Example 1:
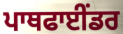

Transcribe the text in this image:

ਪਾਥਫਾਈਂਡਰ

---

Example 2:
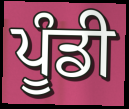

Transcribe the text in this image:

ਪੂੰਡੀ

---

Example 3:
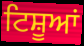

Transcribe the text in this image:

ਟਿਸ਼ੂਆਂ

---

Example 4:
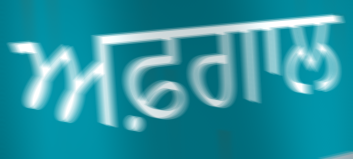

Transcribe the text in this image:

ਅਫ਼ਗਾਲ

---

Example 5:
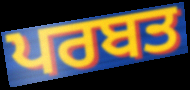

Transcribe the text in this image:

ਪਰਬਤ